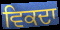
ਵਿਕਦਾ